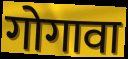
गोगावा